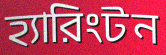
হ্যারিংটন